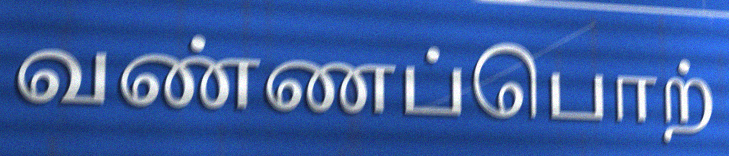
வண்ணப்பொற்